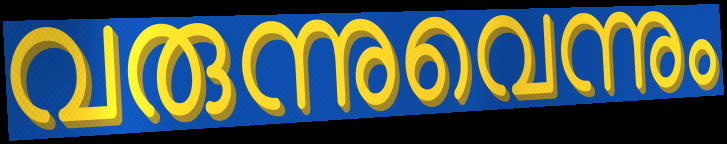
വരുന്നുവെന്നും